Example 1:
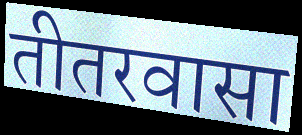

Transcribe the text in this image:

तीतरवासा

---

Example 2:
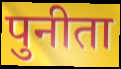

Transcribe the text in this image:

पुनीता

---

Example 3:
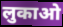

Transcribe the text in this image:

लुकाओ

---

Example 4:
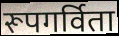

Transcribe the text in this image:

रूपगर्विता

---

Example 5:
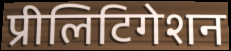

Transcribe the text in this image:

प्रीलिटिगेशन